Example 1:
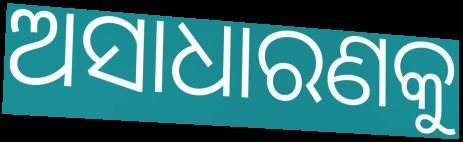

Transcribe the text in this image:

ଅସାଧାରଣକୁ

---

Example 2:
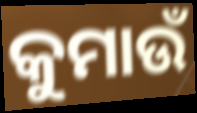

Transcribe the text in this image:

କୁମାଉଁ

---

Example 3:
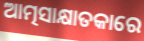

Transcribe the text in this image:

ଆତ୍ମସାକ୍ଷାତକାରେ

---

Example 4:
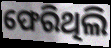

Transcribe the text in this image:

ଫେରିଥିଲି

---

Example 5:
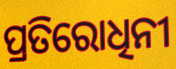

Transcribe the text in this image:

ପ୍ରତିରୋଧିନୀ